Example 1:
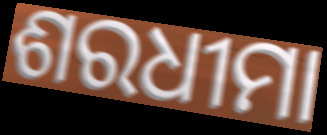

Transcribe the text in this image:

ଶରଧୀମା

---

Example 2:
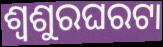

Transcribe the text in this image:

ଶ୍ୱଶୁରଘରଟା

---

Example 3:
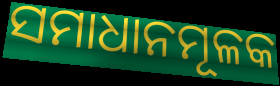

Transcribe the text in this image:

ସମାଧାନମୂଳକ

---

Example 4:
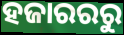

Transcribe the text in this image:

ହଜାରରରୁ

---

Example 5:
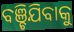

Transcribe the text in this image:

ବଞ୍ଚିଯିବାକୁ